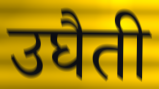
उघैती